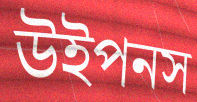
উইপনস